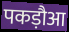
पकड़ौआ